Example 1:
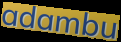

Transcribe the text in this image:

adambu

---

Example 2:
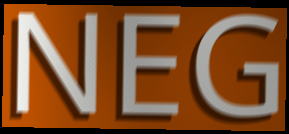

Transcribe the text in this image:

NEG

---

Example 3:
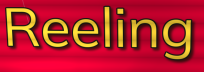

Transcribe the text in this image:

Reeling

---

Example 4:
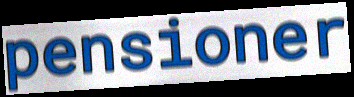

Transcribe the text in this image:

pensioner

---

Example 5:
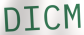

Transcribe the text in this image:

DICM